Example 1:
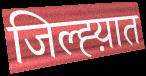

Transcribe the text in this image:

जिल्ह्य़ात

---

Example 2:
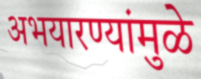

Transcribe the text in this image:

अभयारण्यांमुळे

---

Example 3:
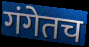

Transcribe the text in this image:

गंगेतच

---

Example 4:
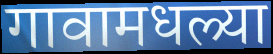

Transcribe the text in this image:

गावामधल्या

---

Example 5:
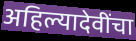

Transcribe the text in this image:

अहिल्यादेवींचा